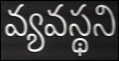
వ్యవస్థని